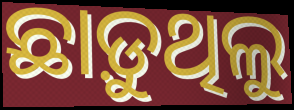
ଛାଡ଼ୁଥିଲୁ